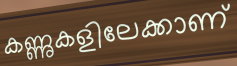
കണ്ണുകളിലേക്കാണ്